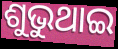
ଶୁଭୁଥାଇ